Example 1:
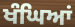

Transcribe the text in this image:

ਖੰਘਿਆਂ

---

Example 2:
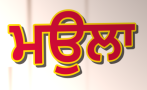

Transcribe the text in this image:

ਮਉਲਾ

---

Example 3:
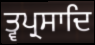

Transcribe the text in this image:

ਤ੍ਵਪ੍ਰਸਾਦਿ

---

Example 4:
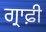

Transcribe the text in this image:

ਗ੍ਰਾਫ਼ੀ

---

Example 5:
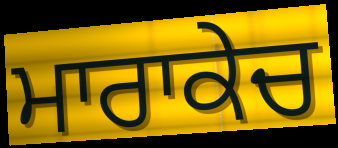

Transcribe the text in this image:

ਮਾਰਾਕੇਚ